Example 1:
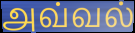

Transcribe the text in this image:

அவ்வல்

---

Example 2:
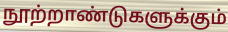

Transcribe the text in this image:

நூற்றாண்டுகளுக்கும்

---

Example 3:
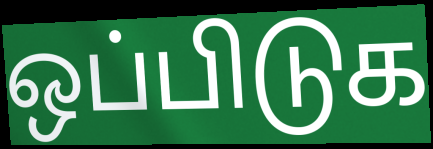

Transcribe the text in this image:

ஒப்பிடுக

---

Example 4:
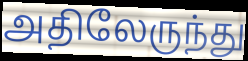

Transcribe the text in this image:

அதிலேருந்து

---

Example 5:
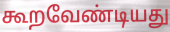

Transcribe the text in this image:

கூறவேண்டியது